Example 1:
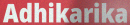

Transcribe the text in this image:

Adhikarika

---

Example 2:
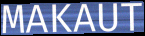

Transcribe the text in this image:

MAKAUT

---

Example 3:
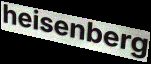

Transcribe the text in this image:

heisenberg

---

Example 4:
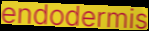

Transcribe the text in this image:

endodermis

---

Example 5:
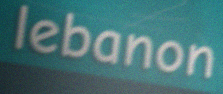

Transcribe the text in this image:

lebanon